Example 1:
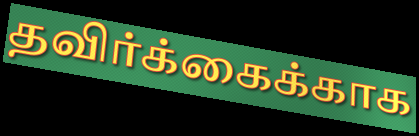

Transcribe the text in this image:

தவிர்க்கைக்காக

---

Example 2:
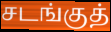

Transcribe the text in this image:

சடங்குத்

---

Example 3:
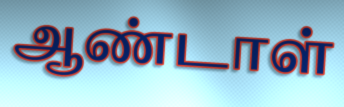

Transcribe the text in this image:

ஆண்டாள்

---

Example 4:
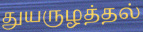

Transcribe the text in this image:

துயருழத்தல்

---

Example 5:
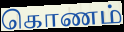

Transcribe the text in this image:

கொணம்